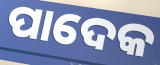
ପାଦେକ